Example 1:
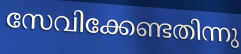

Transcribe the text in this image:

സേവിക്കേണ്ടതിന്നു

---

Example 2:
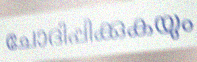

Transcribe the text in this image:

ചോദിപ്പിക്കുകയും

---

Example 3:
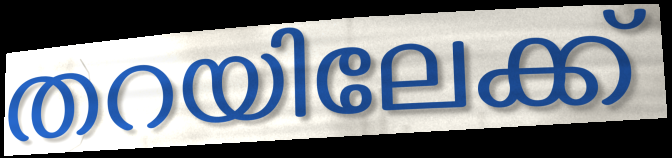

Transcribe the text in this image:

തറയിലേക്ക്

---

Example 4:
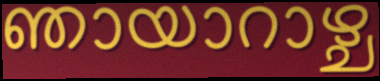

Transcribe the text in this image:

ഞായാറാഴ്ച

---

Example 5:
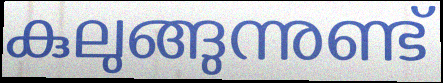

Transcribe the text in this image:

കുലുങ്ങുന്നുണ്ട്